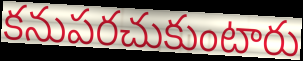
కనుపరచుకుంటారు